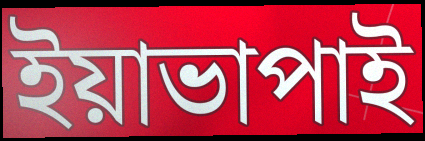
ইয়াভাপাই